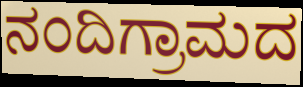
ನಂದಿಗ್ರಾಮದ